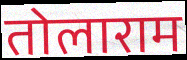
तोलाराम